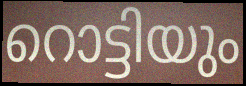
റൊട്ടിയും